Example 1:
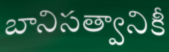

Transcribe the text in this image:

బానిసత్వానికీ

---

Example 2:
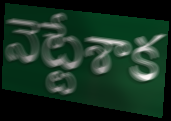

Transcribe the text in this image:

నెట్టేశాక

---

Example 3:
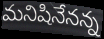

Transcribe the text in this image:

మనిషినేనన్న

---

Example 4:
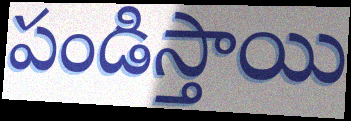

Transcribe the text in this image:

పండిస్తాయి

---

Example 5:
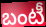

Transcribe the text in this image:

బంటీ